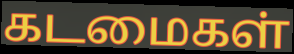
கடமைகள்